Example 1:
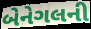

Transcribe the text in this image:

બેનેગલની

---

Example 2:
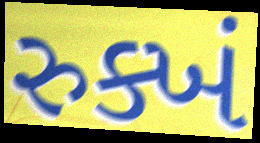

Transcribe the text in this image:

રુક્ખં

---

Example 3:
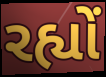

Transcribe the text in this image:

રહ્યોં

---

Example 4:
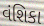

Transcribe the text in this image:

વંશિકા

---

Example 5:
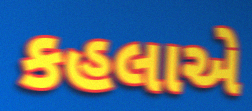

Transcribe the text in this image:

કહલાએ